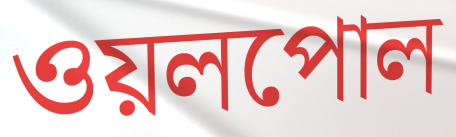
ওয়লপোল